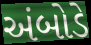
અંબોડે